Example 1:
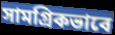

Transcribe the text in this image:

সামগ্রিকভাবে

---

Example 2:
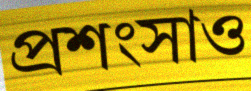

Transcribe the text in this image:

প্রশংসাও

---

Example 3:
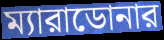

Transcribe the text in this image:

ম্যারাডোনার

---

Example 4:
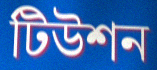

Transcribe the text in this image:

টিউশন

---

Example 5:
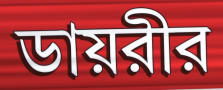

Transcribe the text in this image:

ডায়রীর